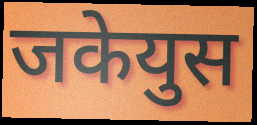
जकेयुस